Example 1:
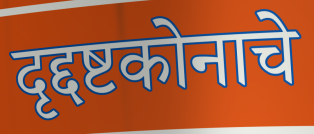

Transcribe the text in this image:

दृद्दष्टकोनाचे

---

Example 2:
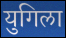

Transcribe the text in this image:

युगिला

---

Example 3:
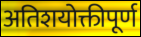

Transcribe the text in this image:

अतिशयोक्तीपूर्ण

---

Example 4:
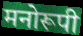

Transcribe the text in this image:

मनोरूपी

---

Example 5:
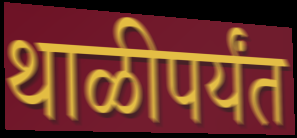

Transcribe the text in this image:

थाळीपर्यंत